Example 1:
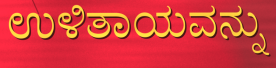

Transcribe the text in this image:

ಉಳಿತಾಯವನ್ನು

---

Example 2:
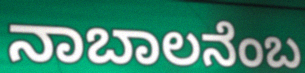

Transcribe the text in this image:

ನಾಬಾಲನೆಂಬ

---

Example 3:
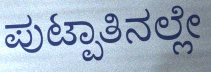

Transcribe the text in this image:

ಪುಟ್ಪಾತಿನಲ್ಲೇ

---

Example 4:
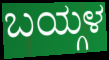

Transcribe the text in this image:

ಬಯ್ಗಳ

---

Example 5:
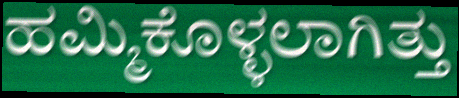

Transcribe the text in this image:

ಹಮ್ಮಿಕೊಳ್ಳಲಾಗಿತ್ತು